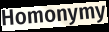
Homonymy